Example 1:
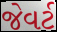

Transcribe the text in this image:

જેવર્ટ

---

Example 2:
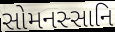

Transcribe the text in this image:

સોમનસ્સાનિ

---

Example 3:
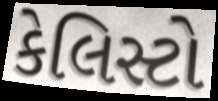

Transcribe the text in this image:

કેલિસ્ટો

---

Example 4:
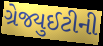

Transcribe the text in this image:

ગ્રેજ્યુઈટીની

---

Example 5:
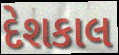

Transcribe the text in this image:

દેશકાલ